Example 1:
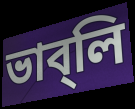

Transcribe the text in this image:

ভাব্‌লি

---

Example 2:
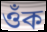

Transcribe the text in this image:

ওঁক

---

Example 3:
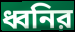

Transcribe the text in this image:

ধ্বনির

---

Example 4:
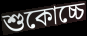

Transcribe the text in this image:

শুকোচ্চে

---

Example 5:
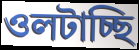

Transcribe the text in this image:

ওলটাচ্ছি